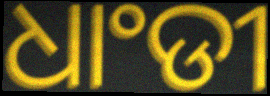
ଧାଂଡୀ